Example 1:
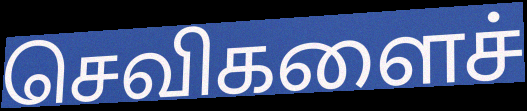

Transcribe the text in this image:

செவிகளைச்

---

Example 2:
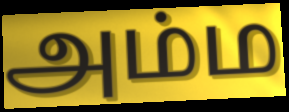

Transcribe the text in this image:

அம்ம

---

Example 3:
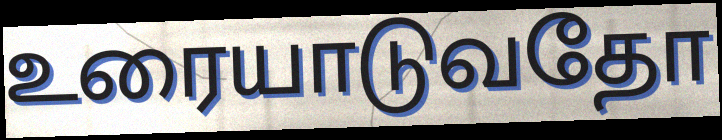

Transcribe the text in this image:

உரையாடுவதோ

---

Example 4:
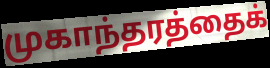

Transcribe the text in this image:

முகாந்தரத்தைக்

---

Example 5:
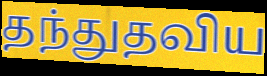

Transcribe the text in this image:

தந்துதவிய